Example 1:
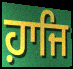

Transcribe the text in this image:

ਹ਼ਾਜਿ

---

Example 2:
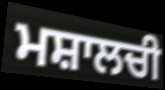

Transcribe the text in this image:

ਮਸ਼ਾਲਚੀ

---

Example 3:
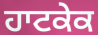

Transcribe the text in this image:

ਹਾਟਕੇਕ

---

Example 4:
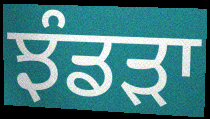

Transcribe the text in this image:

ਝੰਡੜਾ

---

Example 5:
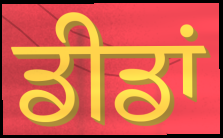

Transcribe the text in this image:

ਡੀਡਾਂ